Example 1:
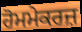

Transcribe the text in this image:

ਹੋਮਮੇਕਰਜ਼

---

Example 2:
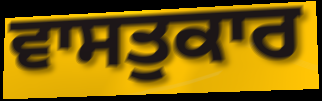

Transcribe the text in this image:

ਵਾਸਤੁਕਾਰ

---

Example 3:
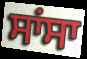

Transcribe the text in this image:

ਸਾਂਸਾ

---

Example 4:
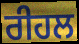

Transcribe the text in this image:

ਰੀਹਲ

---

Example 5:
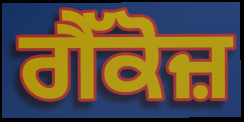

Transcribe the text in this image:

ਗੈੱਕੋਜ਼